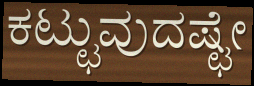
ಕಟ್ಟುವುದಷ್ಟೇ